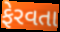
ફેરવતા